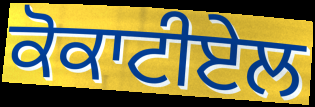
ਕੋਕਾਟੀਏਲ